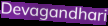
Devagandhari